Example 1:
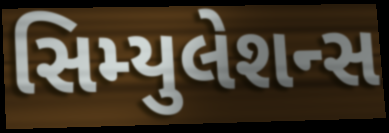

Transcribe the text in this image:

સિમ્યુલેશન્સ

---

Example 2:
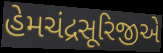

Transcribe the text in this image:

હેમચંદ્રસૂરિજીએ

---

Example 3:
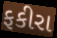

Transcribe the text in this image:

ફકીરા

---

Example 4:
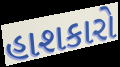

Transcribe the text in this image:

હાશકારો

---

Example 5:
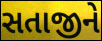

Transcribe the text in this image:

સતાજીને